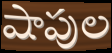
షాపుల